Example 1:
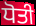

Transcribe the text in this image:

ਧੋਤੀ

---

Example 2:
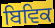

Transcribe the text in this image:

ਬਿਵਿਕ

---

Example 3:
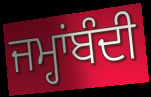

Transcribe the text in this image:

ਜਮ੍ਹਾਂਬੰਦੀ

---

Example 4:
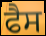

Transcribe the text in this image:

ਫੈਸ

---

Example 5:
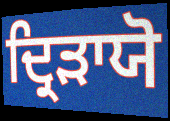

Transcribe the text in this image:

ਦ੍ਰਿੜਾਯੋ